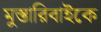
মুস্তারিবাইকে